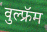
वुल्फ्रॅम